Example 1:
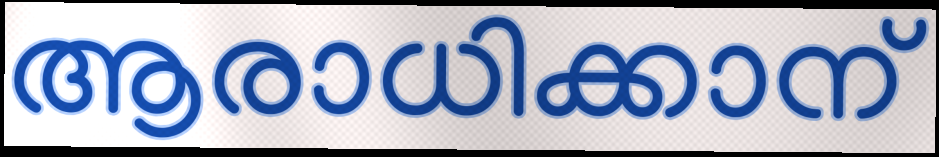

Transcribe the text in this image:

ആരാധിക്കാന്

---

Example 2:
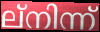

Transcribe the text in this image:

ല്നിന്ന്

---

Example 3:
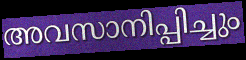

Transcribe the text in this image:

അവസാനിപ്പിച്ചും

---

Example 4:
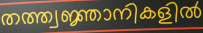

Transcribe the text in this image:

തത്ത്വജ്ഞാനികളിൽ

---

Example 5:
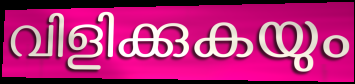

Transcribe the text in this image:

വിളിക്കുകയും